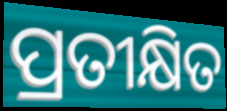
ପ୍ରତୀକ୍ଷିତ